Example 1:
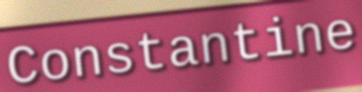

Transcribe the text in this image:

Constantine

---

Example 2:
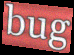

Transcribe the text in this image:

bug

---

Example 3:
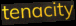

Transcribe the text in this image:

tenacity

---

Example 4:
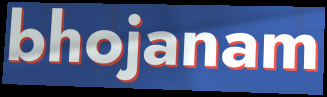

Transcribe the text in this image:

bhojanam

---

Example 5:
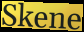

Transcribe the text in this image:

Skene